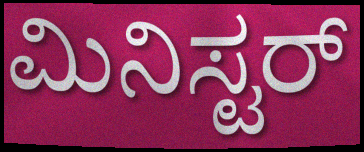
ಮಿನಿಸ್ಟರ್